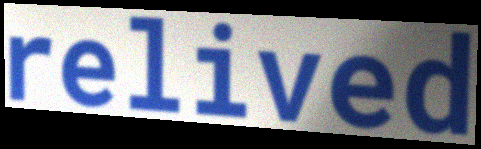
relived